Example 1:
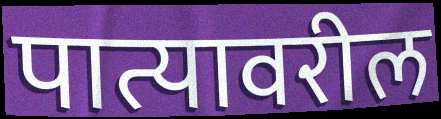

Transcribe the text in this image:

पात्यावरील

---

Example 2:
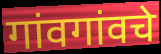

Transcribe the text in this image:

गांवगांवचे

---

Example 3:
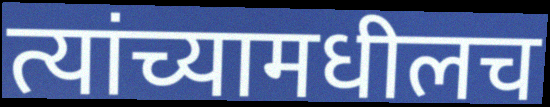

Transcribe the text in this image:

त्यांच्यामधीलच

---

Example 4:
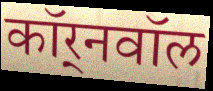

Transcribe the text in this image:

कॉर्नवॉल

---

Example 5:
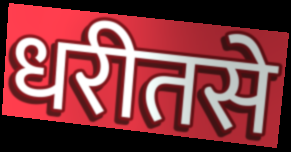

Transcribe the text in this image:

धरीतसे